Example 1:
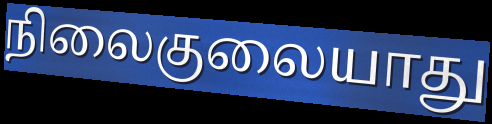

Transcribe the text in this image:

நிலைகுலையாது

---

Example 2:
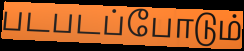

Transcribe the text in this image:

படபடப்போடும்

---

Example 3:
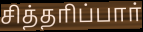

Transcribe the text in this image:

சித்தரிப்பார்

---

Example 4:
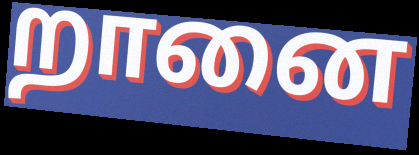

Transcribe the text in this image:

றானை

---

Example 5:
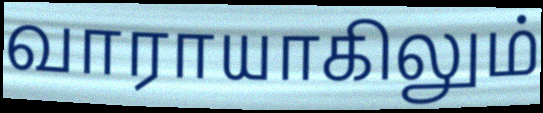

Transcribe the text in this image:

வாராயாகிலும்